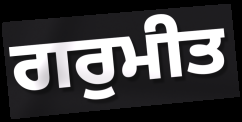
ਗਰੁਮੀਤ